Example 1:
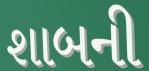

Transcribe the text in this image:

શાબની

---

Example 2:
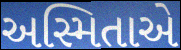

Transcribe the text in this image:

અસ્મિતાએ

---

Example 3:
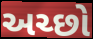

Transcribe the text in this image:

અચ્છો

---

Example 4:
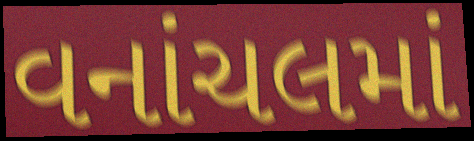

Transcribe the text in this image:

વનાંચલમાં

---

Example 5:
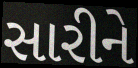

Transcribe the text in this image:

સારીને